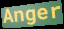
Anger